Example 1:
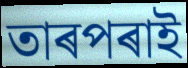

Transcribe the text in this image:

তাৰপৰাই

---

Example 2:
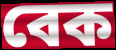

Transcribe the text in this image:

বেক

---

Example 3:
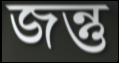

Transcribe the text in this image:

জন্তু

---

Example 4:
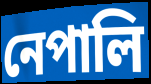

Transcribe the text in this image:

নেপালি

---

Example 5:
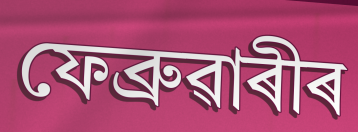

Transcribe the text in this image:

ফেব্ৰুৱাৰীৰ